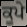
ਕੂਪੇ